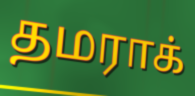
தமராக்